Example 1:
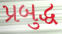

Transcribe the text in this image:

પ્રબુદ્ધ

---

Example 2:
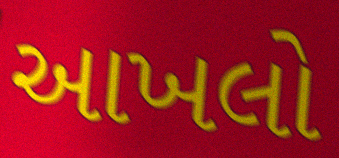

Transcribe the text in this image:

આખલો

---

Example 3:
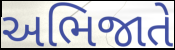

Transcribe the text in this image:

અભિજાતે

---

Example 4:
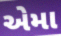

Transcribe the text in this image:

એમા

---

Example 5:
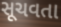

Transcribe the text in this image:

સૂચવતા